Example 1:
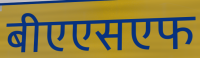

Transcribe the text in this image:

बीएएसएफ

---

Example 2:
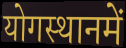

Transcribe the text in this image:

योगस्थानमें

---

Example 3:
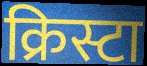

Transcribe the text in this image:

क्रिस्टा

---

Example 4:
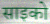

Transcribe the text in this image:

साइको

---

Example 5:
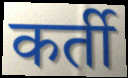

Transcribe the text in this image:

कर्ती